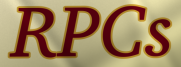
RPCs